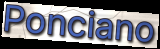
Ponciano